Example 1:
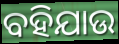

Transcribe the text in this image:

ବହିଯାଉ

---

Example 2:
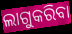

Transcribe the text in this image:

ଲାଗୁକରିବା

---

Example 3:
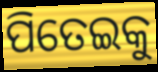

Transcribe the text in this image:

ପିତେଇକୁ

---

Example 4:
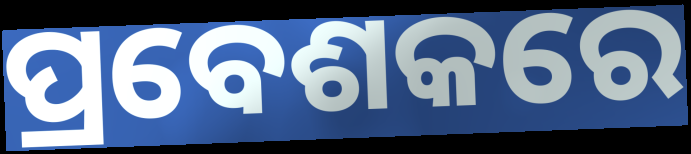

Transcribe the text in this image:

ପ୍ରବେଶକରେ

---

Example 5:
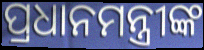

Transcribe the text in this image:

ପ୍ରଧାନମନ୍ତ୍ରୀଙ୍କ